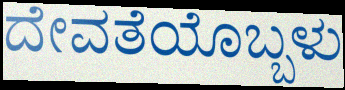
ದೇವತೆಯೊಬ್ಬಳು